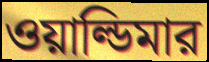
ওয়াল্ডিমার